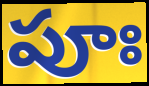
పూః